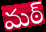
మఠ్